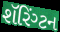
શૅરિંગ્ટન